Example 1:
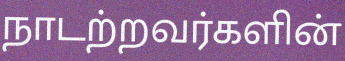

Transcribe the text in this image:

நாடற்றவர்களின்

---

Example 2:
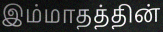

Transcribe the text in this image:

இம்மாதத்தின்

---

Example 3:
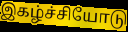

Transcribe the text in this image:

இகழ்ச்சியோடு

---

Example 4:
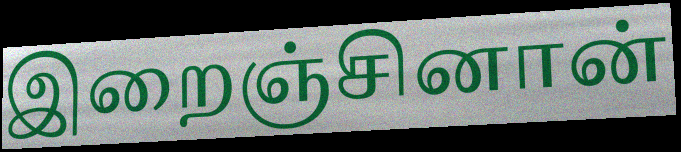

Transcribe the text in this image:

இறைஞ்சினான்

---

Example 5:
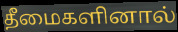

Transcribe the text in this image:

தீமைகளினால்